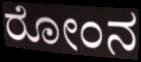
ರೋಂನ